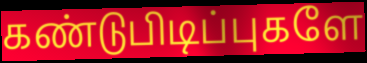
கண்டுபிடிப்புகளே